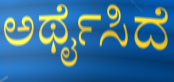
ಅರ್ಥೈಸಿದೆ